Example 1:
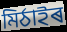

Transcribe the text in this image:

মিঠাইৰ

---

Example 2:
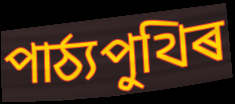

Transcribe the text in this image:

পাঠ্যপুথিৰ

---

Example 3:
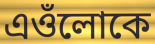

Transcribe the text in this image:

এওঁলোকে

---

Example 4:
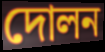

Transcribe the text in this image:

দোলন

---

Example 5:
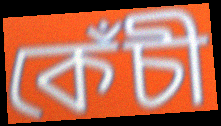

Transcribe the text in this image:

কেঁচী